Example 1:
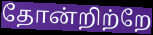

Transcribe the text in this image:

தோன்றிற்றே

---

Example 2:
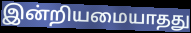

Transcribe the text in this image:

இன்றியமையாதது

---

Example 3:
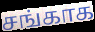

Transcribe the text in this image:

சங்காக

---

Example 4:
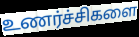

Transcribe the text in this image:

உணர்ச்சிகளை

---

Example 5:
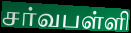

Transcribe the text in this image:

சர்வபள்ளி